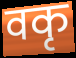
वकृ